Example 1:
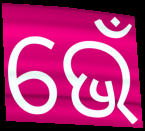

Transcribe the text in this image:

ଭେଁ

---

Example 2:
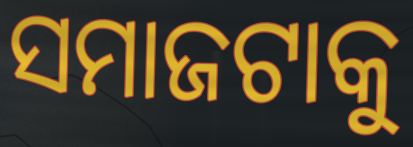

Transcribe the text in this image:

ସମାଜଟାକୁ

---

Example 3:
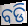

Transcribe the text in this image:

ବଡି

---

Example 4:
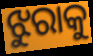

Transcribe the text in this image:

ଝୁରାକୁ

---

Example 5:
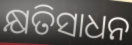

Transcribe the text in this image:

କ୍ଷତିସାଧନ